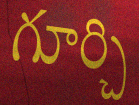
గూర్చి